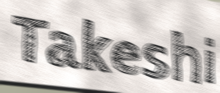
Takeshi